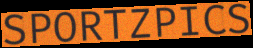
SPORTZPICS